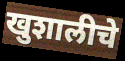
खुशालीचे